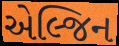
એલ્જિન